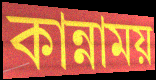
কান্নাময়